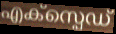
എക്സ്പെഡ്